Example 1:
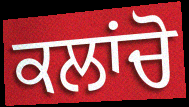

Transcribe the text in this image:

ਕਲਾਂਚੋ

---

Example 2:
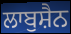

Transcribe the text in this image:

ਲਾਬੁਸ਼ੈਨ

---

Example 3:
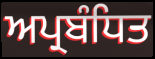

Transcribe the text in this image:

ਅਪ੍ਰਬੰਧਿਤ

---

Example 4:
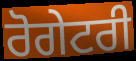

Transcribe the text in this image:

ਰੋਗੇਟਰੀ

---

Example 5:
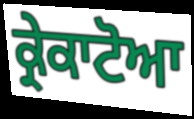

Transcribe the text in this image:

ਕ੍ਰੇਕਾਟੋਆ